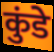
कुंडे